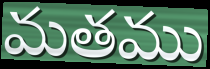
మతము